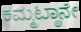
ಕಮ್ಮಟ್ಠಾನೇ